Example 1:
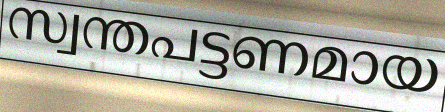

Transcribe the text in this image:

സ്വന്തപട്ടണമായ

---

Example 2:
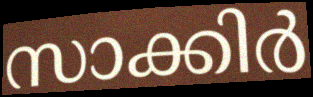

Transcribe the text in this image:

സാക്കിർ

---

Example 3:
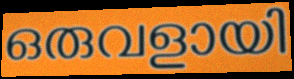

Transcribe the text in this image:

ഒരുവളായി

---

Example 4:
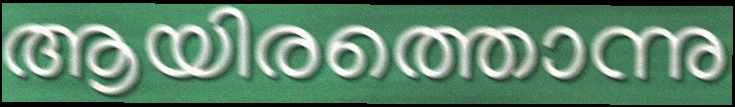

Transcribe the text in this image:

ആയിരത്തൊന്നു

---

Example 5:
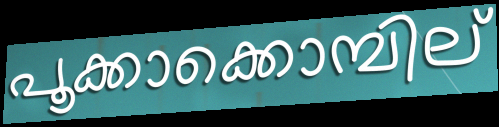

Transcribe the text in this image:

പൂക്കാക്കൊമ്പില്